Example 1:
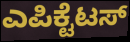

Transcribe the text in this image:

ಎಪಿಕ್ಟೆಟಸ್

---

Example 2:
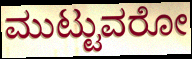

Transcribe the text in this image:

ಮುಟ್ಟುವರೋ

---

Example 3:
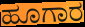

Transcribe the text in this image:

ಹೂಗಾರ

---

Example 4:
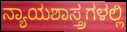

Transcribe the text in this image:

ನ್ಯಾಯಶಾಸ್ತ್ರಗಳಲ್ಲಿ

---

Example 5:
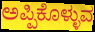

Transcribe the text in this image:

ಅಪ್ಪಿಕೊಳ್ಳುವ